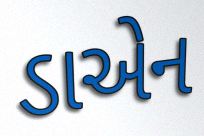
ડાએન